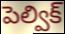
పెల్విక్